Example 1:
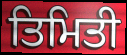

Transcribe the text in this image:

ਤਿਮਿਤੀ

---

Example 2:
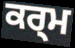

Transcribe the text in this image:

ਕਰ੍ਮ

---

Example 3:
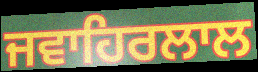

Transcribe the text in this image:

ਜਵਾਹਿਰਲਾਲ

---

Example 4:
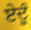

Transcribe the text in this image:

ਏਦੂੰ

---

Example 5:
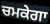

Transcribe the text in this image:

ਚਮਕੇਗਾ